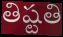
తిష్టతి